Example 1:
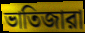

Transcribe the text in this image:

ভাতিজারা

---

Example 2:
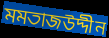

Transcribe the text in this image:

মমতাজউদ্দীন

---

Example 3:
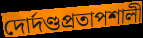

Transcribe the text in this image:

দোর্দণ্ডপ্রতাপশালী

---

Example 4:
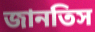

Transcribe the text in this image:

জানতিস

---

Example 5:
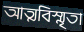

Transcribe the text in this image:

আত্মবিস্মৃতা